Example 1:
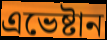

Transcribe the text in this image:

এভেষ্টান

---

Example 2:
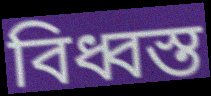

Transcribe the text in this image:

বিধ্বস্ত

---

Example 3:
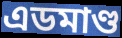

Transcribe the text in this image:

এডমাণ্ড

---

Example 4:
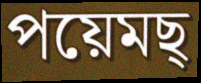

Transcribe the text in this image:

পয়েমছ্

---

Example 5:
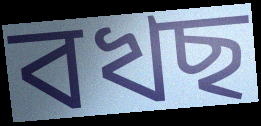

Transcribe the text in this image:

বখছ